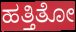
ಹತ್ತಿತೋ